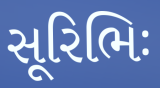
સૂરિભિઃ